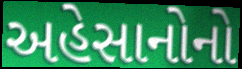
અહેસાનોનો